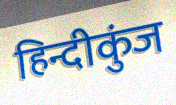
हिन्दीकुंज